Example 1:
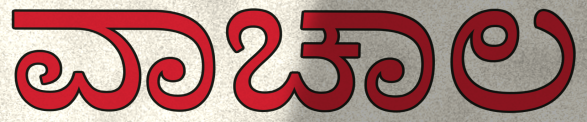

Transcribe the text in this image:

ವಾಚಾಲ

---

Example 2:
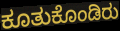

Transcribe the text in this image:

ಕೂತುಕೊಂಡಿರು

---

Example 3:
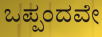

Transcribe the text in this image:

ಒಪ್ಪಂದವೇ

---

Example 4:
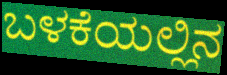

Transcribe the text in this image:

ಬಳಕೆಯಲ್ಲಿನ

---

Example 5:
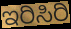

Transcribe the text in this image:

ಇರಿಸಿರಿ